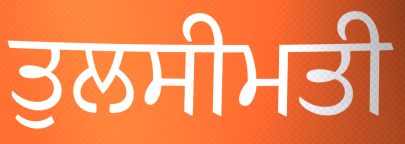
ਤੁਲਸੀਮਤੀ